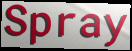
Spray